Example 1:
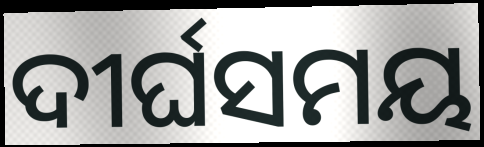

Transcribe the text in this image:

ଦୀର୍ଘସମୟ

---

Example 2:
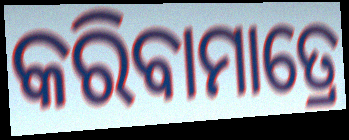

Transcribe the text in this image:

କରିବାମାତ୍ରେ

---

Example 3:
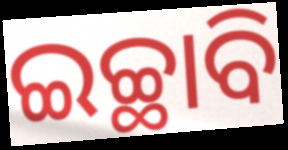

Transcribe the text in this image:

ଇଚ୍ଛାବି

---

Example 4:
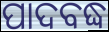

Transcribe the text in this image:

ପାଦବଦ୍ଧ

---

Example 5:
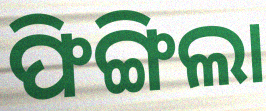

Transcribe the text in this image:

ଫିଙ୍ଗିଲା